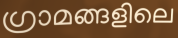
ഗ്രാമങ്ങളിലെ